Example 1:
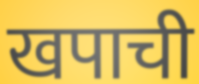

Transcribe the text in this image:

खपाची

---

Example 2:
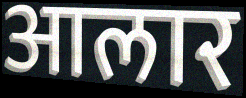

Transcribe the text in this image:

आलार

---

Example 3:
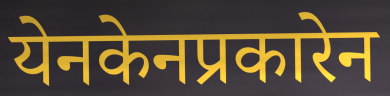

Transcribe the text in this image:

येनकेनप्रकारेन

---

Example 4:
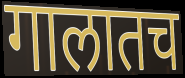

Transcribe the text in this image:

गालातच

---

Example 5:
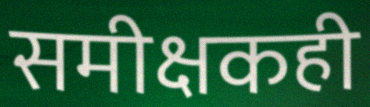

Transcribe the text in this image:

समीक्षकही